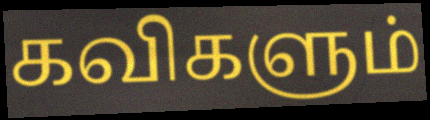
கவிகளும்